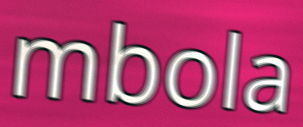
mbola